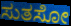
ಸುತಸೋ